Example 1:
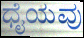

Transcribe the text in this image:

ಧೈಯವು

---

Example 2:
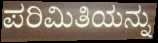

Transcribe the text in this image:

ಪರಿಮಿತಿಯನ್ನು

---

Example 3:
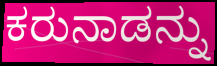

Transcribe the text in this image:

ಕರುನಾಡನ್ನು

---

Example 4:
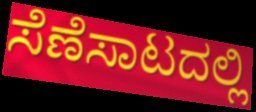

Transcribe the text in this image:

ಸೆಣೆಸಾಟದಲ್ಲಿ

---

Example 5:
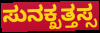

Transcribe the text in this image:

ಸುನಕ್ಖತ್ತಸ್ಸ